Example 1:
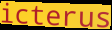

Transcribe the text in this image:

icterus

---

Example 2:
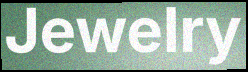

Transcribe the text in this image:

Jewelry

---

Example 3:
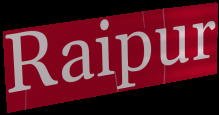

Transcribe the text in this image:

Raipur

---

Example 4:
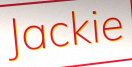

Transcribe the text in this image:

Jackie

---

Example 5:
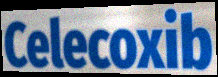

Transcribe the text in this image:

Celecoxib